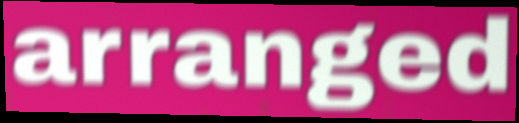
arranged